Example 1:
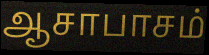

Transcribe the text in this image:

ஆசாபாசம்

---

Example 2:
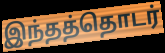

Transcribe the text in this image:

இந்தத்தொடர்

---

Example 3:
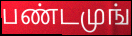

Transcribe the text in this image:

பண்டமுங்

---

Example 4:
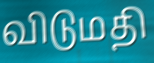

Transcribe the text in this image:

விடுமதி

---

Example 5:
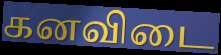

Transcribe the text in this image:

கனவிடை